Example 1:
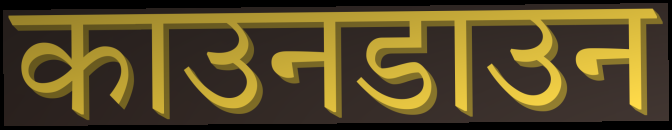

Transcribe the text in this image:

काउनडाउन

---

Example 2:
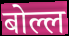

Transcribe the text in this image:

बोल्ल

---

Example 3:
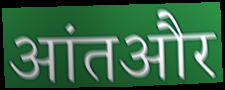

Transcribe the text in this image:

आंतऔर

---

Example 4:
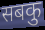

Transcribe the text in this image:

सबकु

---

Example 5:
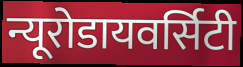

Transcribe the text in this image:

न्यूरोडायवर्सिटी